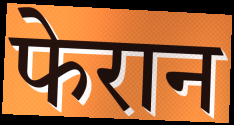
फेरान